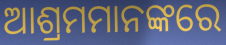
ଆଶ୍ରମମାନଙ୍କରେ